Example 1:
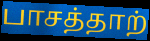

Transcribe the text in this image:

பாசத்தாற்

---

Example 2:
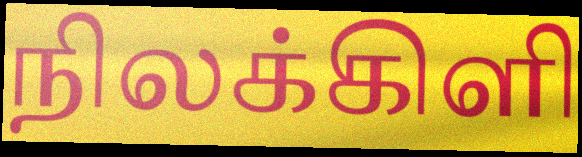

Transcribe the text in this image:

நிலக்கிளி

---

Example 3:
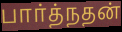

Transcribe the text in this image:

பார்த்நதன்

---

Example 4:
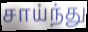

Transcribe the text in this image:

சாய்ந்து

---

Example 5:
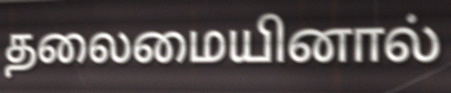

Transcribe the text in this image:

தலைமையினால்